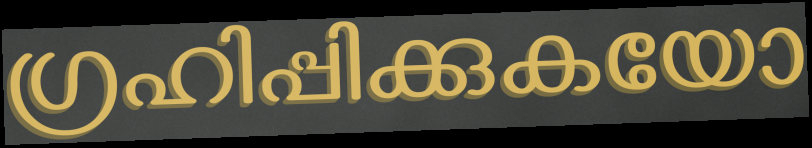
ഗ്രഹിപ്പിക്കുകയോ